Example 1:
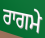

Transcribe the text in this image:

ਰਾਗਮੇ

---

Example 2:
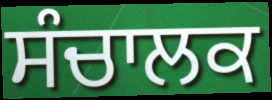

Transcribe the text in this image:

ਸੰਚਾਲਕ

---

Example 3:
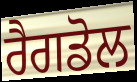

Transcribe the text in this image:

ਰੈਗਡੋਲ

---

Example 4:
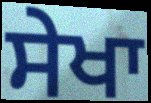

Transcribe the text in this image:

ਸੇਖਾ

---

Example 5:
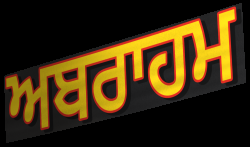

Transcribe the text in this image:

ਅਬਰਾਹਮ